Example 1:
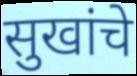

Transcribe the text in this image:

सुखांचे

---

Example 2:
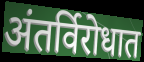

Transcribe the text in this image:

अंतर्विरोधात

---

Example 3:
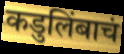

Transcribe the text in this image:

कडुलिंबाचं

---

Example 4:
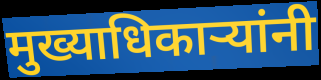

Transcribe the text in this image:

मुख्याधिकाऱ्यांनी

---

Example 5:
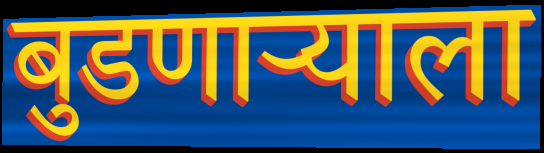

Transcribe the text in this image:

बुडणाऱ्याला